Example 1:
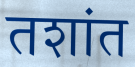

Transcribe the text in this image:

तशांत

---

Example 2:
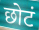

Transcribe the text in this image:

छोटं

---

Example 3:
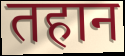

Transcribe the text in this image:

तहान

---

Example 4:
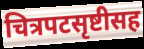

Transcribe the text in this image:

चित्रपटसृष्टीसह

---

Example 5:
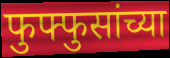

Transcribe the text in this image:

फुफ्फुसांच्या